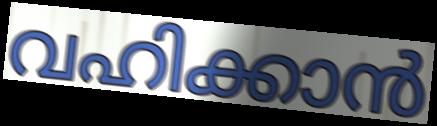
വഹിക്കാൻ